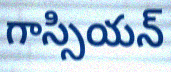
గాస్సియన్